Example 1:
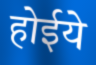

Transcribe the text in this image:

होईये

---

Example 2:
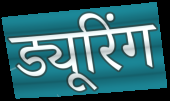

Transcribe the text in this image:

ड्यूरिंग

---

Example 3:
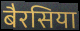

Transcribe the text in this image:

बैरसिया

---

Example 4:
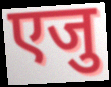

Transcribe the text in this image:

एजु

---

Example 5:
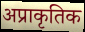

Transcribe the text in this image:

अप्राकृतिक